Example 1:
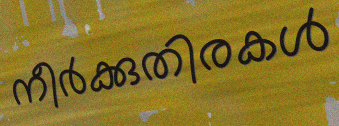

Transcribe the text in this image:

നീർക്കുതിരകൾ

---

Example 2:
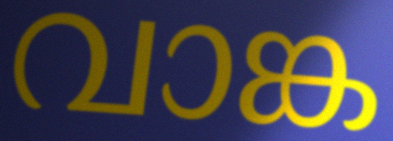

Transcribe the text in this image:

വാങ്ക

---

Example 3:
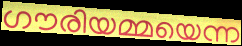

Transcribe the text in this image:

ഗൗരിയമ്മയെന്ന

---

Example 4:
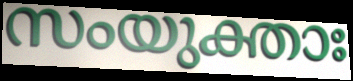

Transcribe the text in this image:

സംയുക്താഃ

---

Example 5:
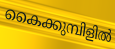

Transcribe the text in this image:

കൈക്കുമ്പിളിൽ